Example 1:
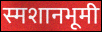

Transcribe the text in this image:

स्मशानभूमी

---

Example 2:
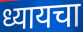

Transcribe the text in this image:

ध्यायचा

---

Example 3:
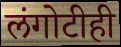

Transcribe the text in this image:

लंगोटीही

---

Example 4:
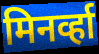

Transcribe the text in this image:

मिनर्व्हा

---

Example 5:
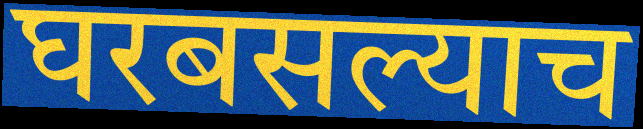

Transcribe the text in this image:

घरबसल्याच